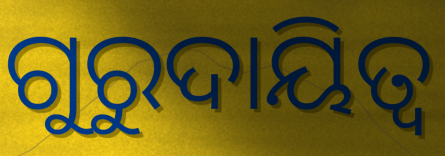
ଗୁରୁଦାୟିତ୍ୱ